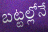
బట్టల్లోనే